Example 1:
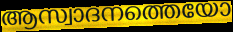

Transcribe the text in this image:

ആസ്വാദനത്തെയോ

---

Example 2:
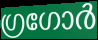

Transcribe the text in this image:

ഗ്രഗോർ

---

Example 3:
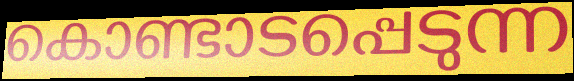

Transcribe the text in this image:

കൊണ്ടാടപ്പെടുന്ന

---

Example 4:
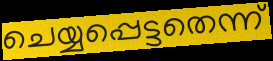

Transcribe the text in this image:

ചെയ്യപ്പെട്ടതെന്ന്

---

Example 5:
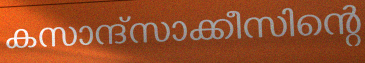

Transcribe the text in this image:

കസാന്ദ്സാക്കീസിന്റെ